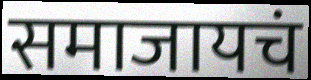
समाजायचं